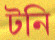
টনি